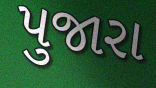
પુજારા